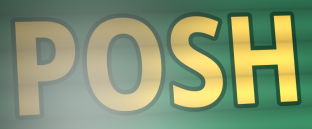
POSH